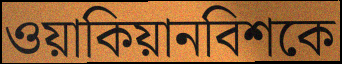
ওয়াকিয়ানবিশকে